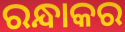
ରନ୍ଧାକର